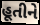
હૂતીને